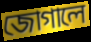
জোগালে